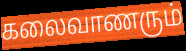
கலைவாணரும்